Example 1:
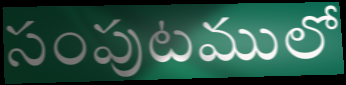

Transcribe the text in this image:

సంపుటములో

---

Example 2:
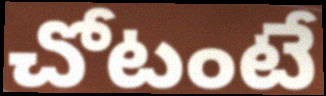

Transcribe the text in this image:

చోటంటే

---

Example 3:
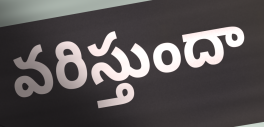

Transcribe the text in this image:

వరిస్తుందా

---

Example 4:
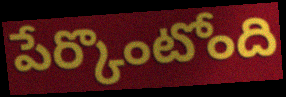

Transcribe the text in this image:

పేర్కొంటోంది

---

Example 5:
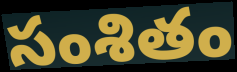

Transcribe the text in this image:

సంశితం